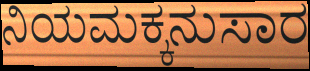
ನಿಯಮಕ್ಕನುಸಾರ